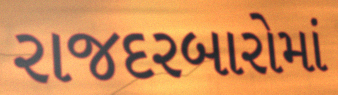
રાજદરબારોમાં